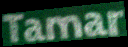
Tamar